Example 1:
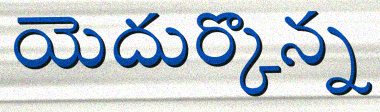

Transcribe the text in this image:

యెదుర్కొన్న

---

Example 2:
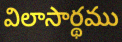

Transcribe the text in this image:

విలాసార్థము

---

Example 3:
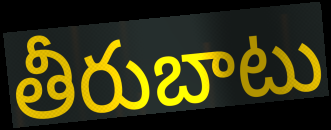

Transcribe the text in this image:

తీరుబాటు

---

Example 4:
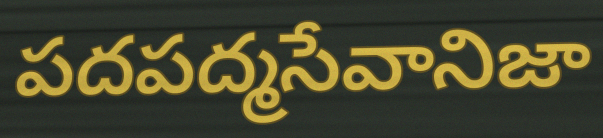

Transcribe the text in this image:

పదపద్మసేవానిజా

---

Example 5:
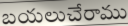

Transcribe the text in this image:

బయలుచేరాము